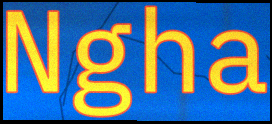
Ngha